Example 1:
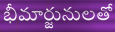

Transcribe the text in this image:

భీమార్జునులతో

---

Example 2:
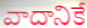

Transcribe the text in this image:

వాదానికే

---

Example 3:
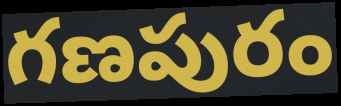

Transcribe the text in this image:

గణపురం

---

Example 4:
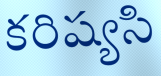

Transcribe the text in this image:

కరిష్యసి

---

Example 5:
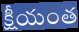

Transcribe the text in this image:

క్షీయంత